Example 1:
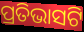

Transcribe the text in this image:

ପ୍ରତିଭାସଟି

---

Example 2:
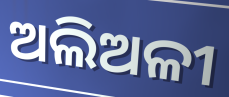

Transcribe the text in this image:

ଅଲିଅଳୀ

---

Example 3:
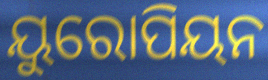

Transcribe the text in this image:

ୟୁରୋପିୟନ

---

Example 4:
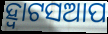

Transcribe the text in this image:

ହ୍ୱାଟସଆପ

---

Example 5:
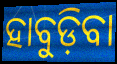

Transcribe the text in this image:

ହାବୁଡ଼ିବା